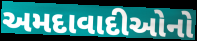
અમદાવાદીઓનો